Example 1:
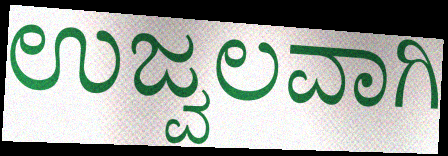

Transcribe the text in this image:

ಉಜ್ವಲವಾಗಿ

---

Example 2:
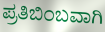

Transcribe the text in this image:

ಪ್ರತಿಬಿಂಬವಾಗಿ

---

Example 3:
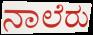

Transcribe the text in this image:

ನಾಲೆರು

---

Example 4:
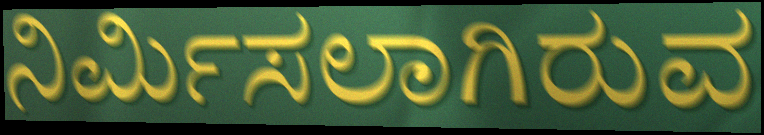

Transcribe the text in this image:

ನಿರ್ಮಿಸಲಾಗಿರುವ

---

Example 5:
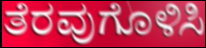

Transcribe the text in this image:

ತೆರವುಗೊಳಿಸಿ